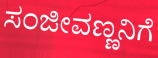
ಸಂಜೀವಣ್ಣನಿಗೆ